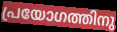
പ്രയോഗത്തിനു